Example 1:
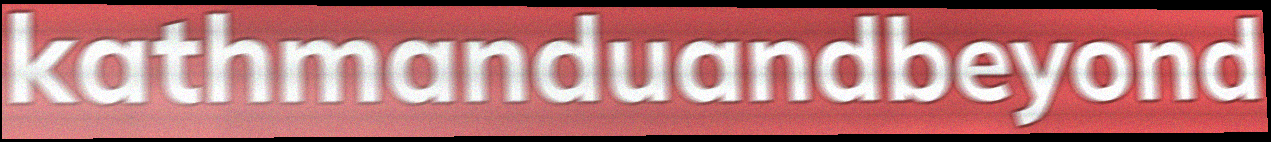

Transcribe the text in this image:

kathmanduandbeyond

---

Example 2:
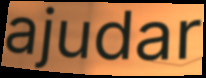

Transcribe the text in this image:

ajudar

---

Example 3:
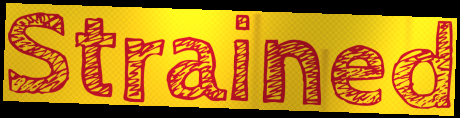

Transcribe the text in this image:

Strained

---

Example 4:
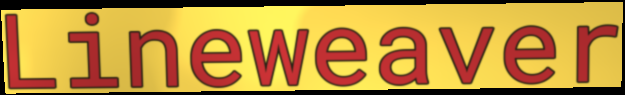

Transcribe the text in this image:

Lineweaver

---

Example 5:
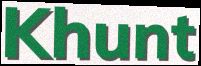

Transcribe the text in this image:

Khunt